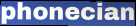
phonecian